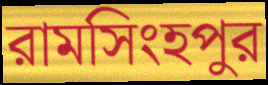
রামসিংহপুর